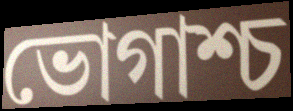
ভোগাশ্চ